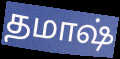
தமாஷ்